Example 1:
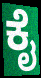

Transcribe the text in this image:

ಕೈ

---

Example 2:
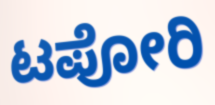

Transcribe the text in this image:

ಟಪೋರಿ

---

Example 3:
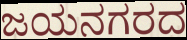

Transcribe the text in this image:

ಜಯನಗರದ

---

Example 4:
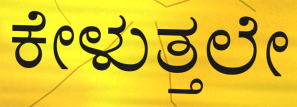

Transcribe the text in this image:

ಕೇಳುತ್ತಲೇ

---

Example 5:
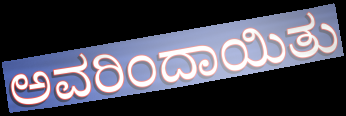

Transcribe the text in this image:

ಅವರಿಂದಾಯಿತು